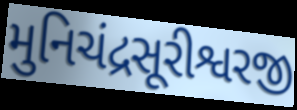
મુનિચંદ્રસૂરીશ્વરજી